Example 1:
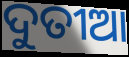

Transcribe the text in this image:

ଦୁତୀଆ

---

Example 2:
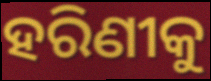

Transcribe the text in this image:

ହରିଣୀକୁ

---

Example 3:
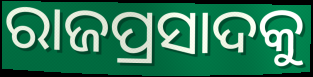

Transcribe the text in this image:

ରାଜପ୍ରସାଦକୁ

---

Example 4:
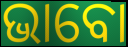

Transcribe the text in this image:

ଭାବୋ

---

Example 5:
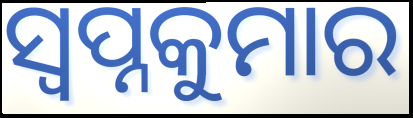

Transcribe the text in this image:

ସ୍ଵପ୍ନକୁମାର